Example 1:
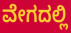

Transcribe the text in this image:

ವೇಗದಲ್ಲಿ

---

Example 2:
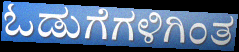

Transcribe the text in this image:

ಓಡುಗೆಗಳಿಗಿಂತ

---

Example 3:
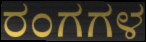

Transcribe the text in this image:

ರಂಗಗಳ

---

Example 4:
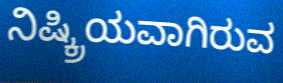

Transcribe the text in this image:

ನಿಷ್ಕ್ರಿಯವಾಗಿರುವ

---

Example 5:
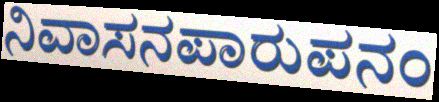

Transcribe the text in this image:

ನಿವಾಸನಪಾರುಪನಂ